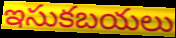
ఇసుకబయలు